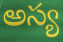
అస్య